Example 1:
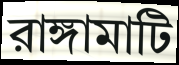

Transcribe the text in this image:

রাঙ্গামাটি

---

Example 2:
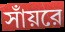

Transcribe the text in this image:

সাঁয়রে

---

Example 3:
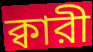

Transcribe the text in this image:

ক্বারী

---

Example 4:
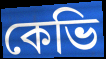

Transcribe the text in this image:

কেভি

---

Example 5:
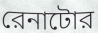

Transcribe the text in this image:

রেনাটোর